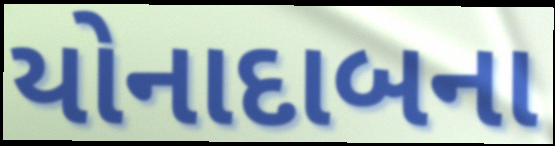
યોનાદાબના